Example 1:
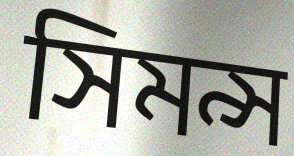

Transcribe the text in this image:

সিমন্স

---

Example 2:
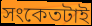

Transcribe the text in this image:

সংকেতটাই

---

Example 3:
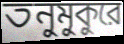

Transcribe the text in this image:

তনুমুকুরে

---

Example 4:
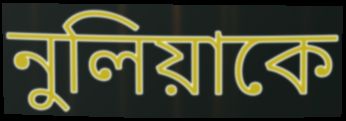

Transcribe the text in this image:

নুলিয়াকে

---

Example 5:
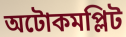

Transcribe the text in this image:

অটোকমপ্লিট